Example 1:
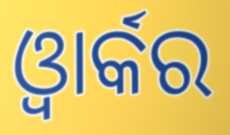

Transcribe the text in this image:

ଓ୍ବାର୍କର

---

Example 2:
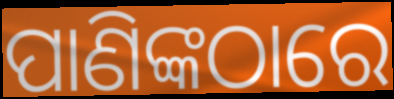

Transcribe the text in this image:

ପାଣିଙ୍କଠାରେ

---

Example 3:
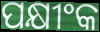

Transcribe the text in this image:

ପକ୍ଷୀଂକ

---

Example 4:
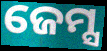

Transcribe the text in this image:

ଜେମ୍ସ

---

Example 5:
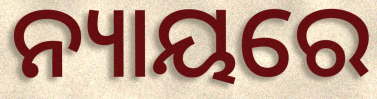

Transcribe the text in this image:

ନ୍ୟାୟରେ